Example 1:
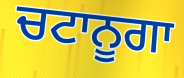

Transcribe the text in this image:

ਚਟਾਨੂਗਾ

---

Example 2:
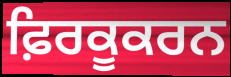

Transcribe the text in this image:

ਫ਼ਿਰਕੂਕਰਨ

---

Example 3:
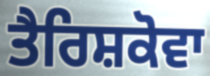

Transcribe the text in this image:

ਤੈਰਿਸ਼ਕੋਵਾ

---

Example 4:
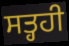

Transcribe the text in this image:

ਸਤ੍ਹਹੀ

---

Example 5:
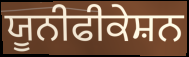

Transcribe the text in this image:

ਯੂਨੀਫੀਕੇਸ਼ਨ